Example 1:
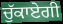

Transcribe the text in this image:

ਚੁੱਕਾਏਗੀ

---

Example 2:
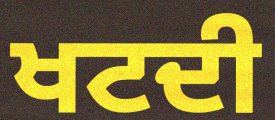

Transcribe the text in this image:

ਖਟਦੀ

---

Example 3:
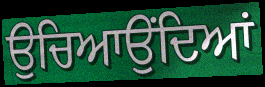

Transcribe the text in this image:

ਉਚਿਆਉਂਦਿਆਂ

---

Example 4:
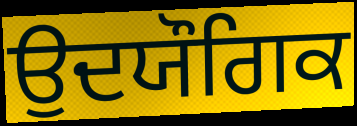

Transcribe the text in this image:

ਉਦਯੌਗਿਕ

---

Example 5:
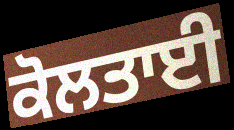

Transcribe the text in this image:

ਕੋਲਤਾਈ